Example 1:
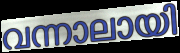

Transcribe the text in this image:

വന്നാലായി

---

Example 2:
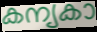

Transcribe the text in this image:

കന്യകാ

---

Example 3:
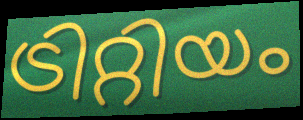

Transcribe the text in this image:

ട്രിറ്റിയം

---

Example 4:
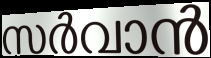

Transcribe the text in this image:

സർവാൻ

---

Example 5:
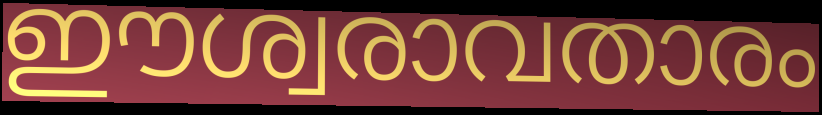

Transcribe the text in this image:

ഈശ്വരാവതാരം